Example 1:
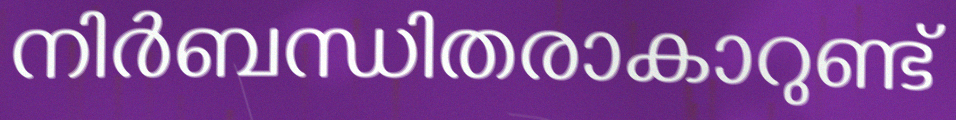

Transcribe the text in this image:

നിർബന്ധിതരാകാറുണ്ട്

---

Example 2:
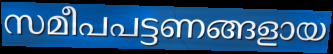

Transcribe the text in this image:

സമീപപട്ടണങ്ങളായ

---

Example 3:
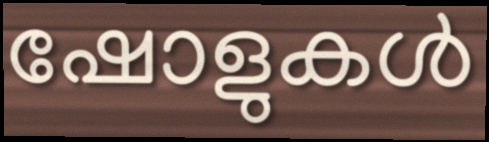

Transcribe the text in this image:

ഷോളുകൾ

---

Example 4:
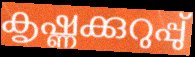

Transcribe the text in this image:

കൃഷ്ണക്കുറുപ്പു്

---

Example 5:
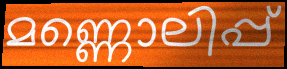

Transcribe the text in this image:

മണ്ണൊലിപ്പ്